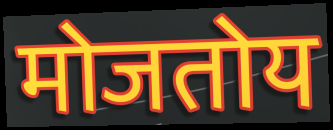
मोजतोय